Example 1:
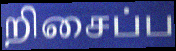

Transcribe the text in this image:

றிசைப்ப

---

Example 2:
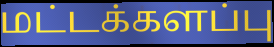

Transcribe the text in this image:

மட்டக்களப்பு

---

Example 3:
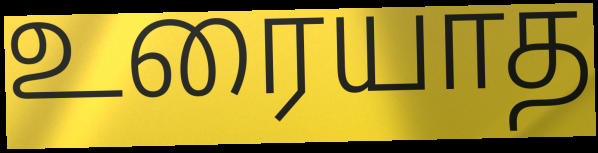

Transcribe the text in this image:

உரையாத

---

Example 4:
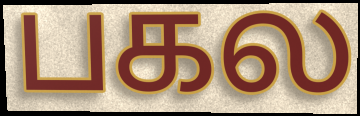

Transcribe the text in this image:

பகல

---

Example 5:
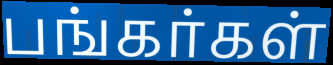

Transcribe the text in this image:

பங்கர்கள்